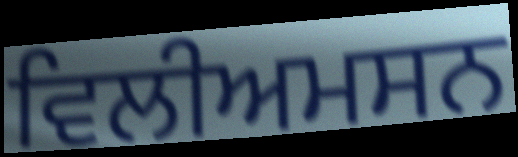
ਵਿਲੀਅਮਸਨ